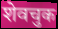
शेवचुक